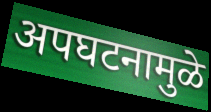
अपघटनामुळे